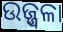
ଉଜ୍ଜ୍ୱଳା